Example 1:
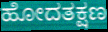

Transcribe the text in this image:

ಹೋದತಕ್ಷಣ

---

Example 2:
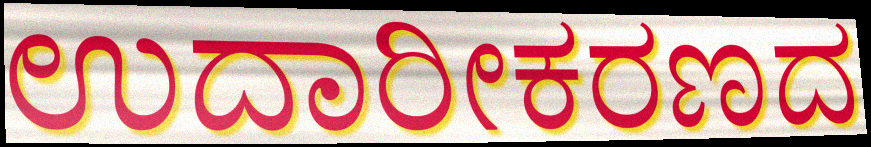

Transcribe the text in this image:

ಉದಾರೀಕರಣದ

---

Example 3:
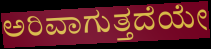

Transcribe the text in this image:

ಅರಿವಾಗುತ್ತದೆಯೇ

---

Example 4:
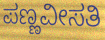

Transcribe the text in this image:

ಪಣ್ಣವೀಸತಿ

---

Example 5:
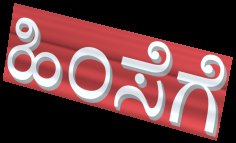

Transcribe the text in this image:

ಹಿಂಸೆಗೆ